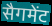
सैगमेंट